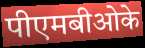
पीएमबीओके